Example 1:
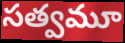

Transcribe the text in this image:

సత్వమూ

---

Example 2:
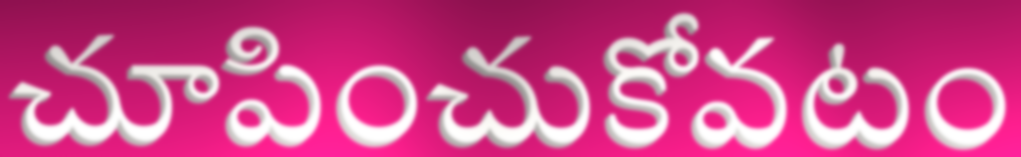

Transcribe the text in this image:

చూపించుకోవటం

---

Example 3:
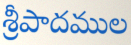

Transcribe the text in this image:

శ్రీపాదముల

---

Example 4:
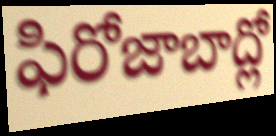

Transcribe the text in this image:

ఫిరోజాబాద్లో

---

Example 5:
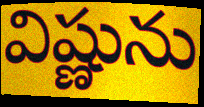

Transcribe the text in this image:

విష్ణును